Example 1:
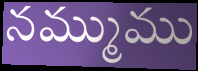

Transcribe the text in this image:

నమ్ముము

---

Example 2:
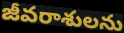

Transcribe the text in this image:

జీవరాశులను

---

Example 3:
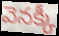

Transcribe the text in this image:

వెనక్కీ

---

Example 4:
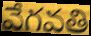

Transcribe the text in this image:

వేగవతి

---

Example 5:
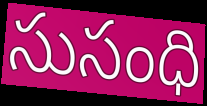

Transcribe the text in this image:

సుసంధి